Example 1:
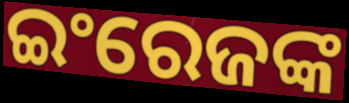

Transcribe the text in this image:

ଇଂରେଜଙ୍କ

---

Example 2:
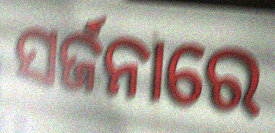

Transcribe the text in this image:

ସର୍ଜନାରେ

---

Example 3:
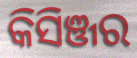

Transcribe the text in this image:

କିସିଞ୍ଜର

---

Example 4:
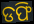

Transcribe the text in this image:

ଡଫି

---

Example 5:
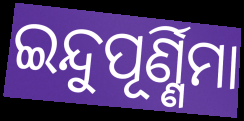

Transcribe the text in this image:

ଇନ୍ଦୁପୂର୍ଣ୍ଣିମା